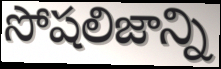
సోషలిజాన్ని